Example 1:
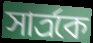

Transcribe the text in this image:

সার্ত্রকে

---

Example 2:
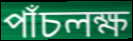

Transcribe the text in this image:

পাঁচলক্ষ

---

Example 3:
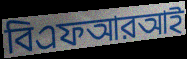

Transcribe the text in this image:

বিএফআরআই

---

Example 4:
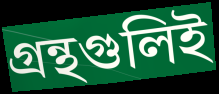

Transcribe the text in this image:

গ্রন্থগুলিই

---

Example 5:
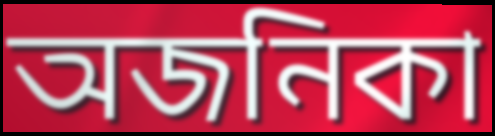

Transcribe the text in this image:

অজনিকা